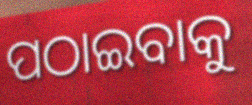
ପଠାଇବାକୁ